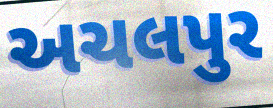
અચલપુર